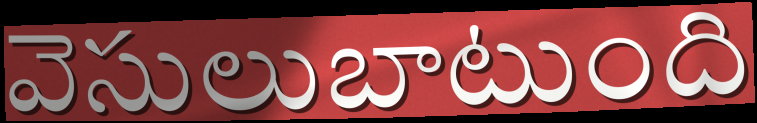
వెసులుబాటుంది